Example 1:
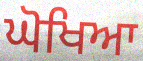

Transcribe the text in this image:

ਘੋਖਿਆ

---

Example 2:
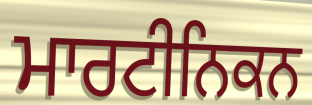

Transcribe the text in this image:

ਮਾਰਟੀਨਿਕਨ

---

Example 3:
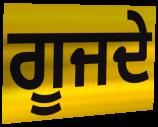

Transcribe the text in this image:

ਗੂਜਦੇ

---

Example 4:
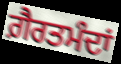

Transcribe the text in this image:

ਗ਼ੈਰਤਮੰਦਾਂ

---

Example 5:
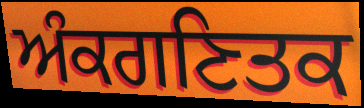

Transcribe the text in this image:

ਅੰਕਗਣਿਤਕ